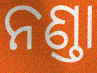
ନଣ୍ଡା